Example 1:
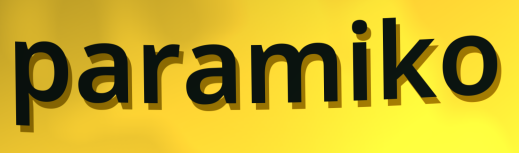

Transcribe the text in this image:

paramiko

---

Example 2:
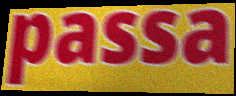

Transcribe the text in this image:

passa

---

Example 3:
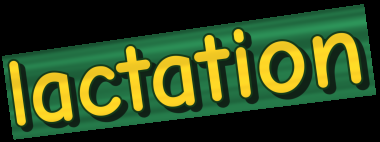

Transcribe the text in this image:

lactation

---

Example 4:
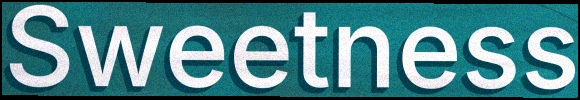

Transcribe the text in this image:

Sweetness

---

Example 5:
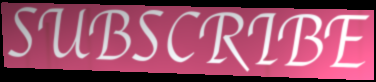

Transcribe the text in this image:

SUBSCRIBE